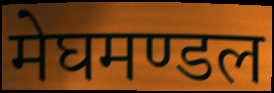
मेघमण्डल